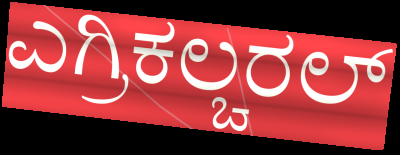
ಎಗ್ರಿಕಲ್ಚರಲ್